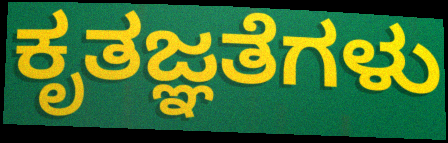
ಕೃತಜ್ಞತೆಗಳು